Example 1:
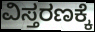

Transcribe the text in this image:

ವಿಸ್ತರಣಕ್ಕೆ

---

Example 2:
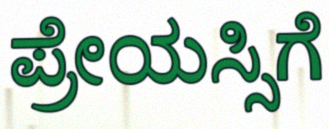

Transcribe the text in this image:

ಪ್ರೇಯಸ್ಸಿಗೆ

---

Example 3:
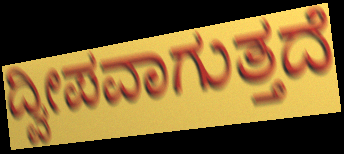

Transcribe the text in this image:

ದ್ವೀಪವಾಗುತ್ತದೆ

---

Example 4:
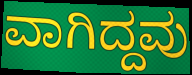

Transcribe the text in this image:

ವಾಗಿದ್ದವು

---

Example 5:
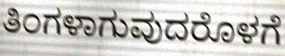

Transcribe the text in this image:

ತಿಂಗಳಾಗುವುದರೊಳಗೆ